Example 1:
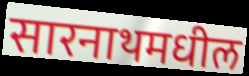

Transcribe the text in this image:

सारनाथमधील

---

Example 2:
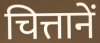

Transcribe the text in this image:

चित्तानें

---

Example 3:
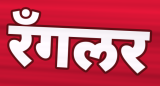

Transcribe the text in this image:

रॅंगलर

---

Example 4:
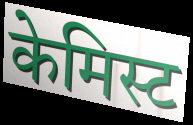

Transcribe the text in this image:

केमिस्ट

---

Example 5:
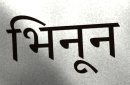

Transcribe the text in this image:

भिनून